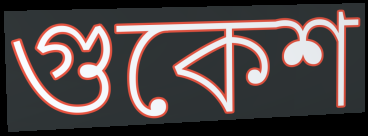
গুকেশ